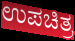
ಉಪಚಿತ್ರ